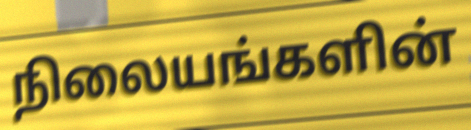
நிலையங்களின்